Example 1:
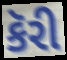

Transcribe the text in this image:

કૅરી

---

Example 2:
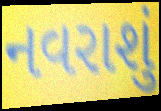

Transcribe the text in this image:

નવરાશું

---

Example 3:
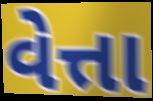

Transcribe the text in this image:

વેત્તા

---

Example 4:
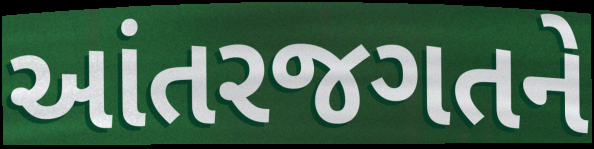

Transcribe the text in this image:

આંતરજગતને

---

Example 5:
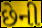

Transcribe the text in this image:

છેની